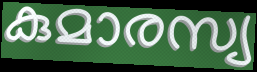
കുമാരസ്യ